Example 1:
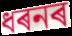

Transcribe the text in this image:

ধৰনৰ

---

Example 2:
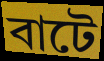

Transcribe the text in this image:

বাটে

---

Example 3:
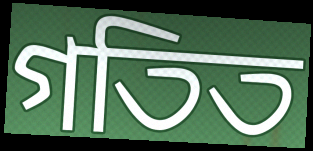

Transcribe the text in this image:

গতিত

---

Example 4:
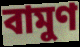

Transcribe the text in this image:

বামুণ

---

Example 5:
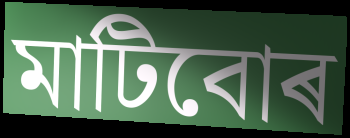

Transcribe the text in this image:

মাটিবোৰ